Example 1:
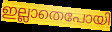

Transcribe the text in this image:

ഇല്ലാതെപോയി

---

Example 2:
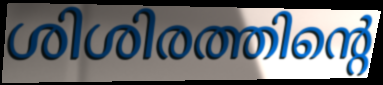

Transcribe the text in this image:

ശിശിരത്തിന്റെ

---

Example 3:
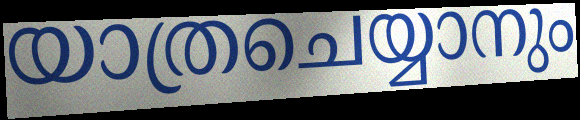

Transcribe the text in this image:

യാത്രചെയ്യാനും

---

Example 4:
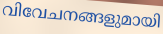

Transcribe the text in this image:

വിവേചനങ്ങളുമായി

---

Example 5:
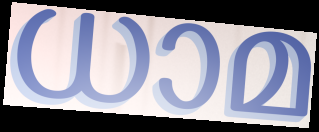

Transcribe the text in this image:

ധാമ